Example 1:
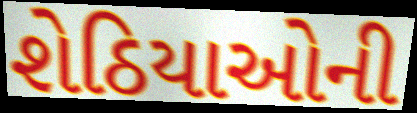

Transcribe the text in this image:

શેઠિયાઓની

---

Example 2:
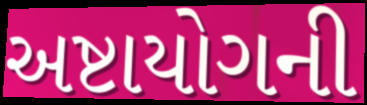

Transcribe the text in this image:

અષ્ટાયોગની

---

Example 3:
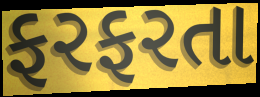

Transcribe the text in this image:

ફરફરતા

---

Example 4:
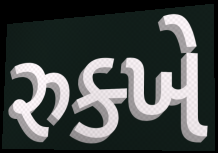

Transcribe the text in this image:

રુક્ખે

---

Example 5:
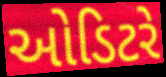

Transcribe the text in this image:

ઓડિટરે